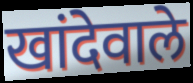
खांदेवाले